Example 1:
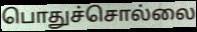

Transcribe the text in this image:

பொதுச்சொல்லை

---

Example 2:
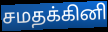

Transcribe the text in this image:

சமதக்கினி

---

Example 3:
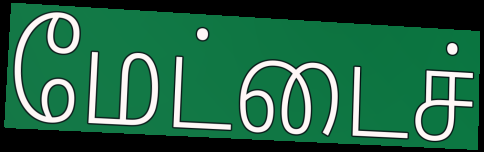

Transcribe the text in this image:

மேட்டைச்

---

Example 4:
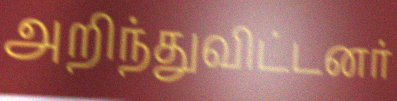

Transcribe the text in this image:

அறிந்துவிட்டனர்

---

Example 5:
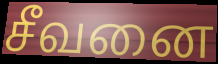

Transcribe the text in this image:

சீவனை